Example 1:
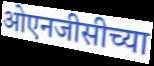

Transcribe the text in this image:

ओएनजीसीच्या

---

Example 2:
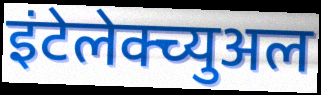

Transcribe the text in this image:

इंटेलेक्च्युअल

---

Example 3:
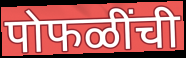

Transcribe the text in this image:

पोफळींची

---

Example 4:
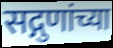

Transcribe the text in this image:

सद्गुणांच्या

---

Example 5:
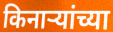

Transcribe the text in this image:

किनाऱ्यांच्या